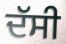
ਦੱਸੀ